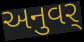
અનુવર્